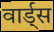
वार्ड्स